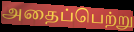
அதைப்பெற்று